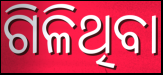
ଗିଳିଥିବା